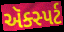
ઍક્સ્પર્ટ